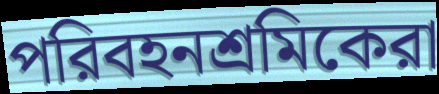
পরিবহনশ্রমিকেরা